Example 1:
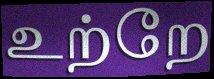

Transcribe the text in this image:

உற்றே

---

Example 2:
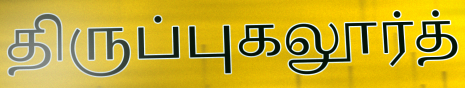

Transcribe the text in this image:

திருப்புகலூர்த்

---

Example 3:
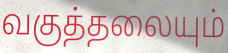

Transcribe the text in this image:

வகுத்தலையும்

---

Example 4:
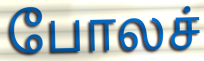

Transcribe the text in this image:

போலச்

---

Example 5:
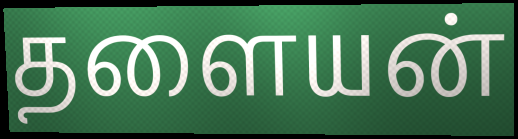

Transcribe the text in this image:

தளையன்